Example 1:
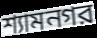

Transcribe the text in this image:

শ্যামনগর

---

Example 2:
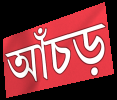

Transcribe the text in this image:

আঁচড়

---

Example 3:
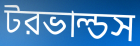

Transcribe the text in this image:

টরভাল্ডস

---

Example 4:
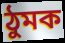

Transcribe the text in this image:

ঠুমক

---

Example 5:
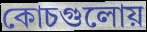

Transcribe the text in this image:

কোচগুলোয়